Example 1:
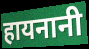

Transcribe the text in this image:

हायनानी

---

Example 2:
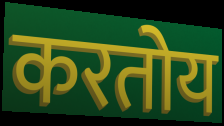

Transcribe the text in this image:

करतोय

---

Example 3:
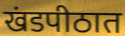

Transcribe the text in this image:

खंडपीठात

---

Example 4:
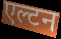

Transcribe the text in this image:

एल्टन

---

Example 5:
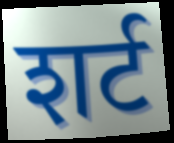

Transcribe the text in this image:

शर्ट